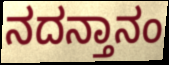
ನದನ್ತಾನಂ